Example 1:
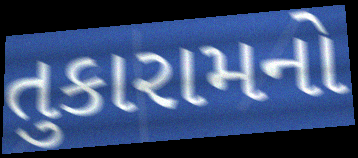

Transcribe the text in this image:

તુકારામનો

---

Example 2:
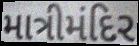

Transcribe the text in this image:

માત્રીમંદિર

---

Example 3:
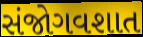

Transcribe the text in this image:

સંજોગવશાત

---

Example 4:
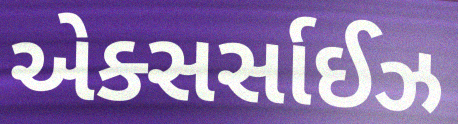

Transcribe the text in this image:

એક્સર્સાઈઝ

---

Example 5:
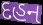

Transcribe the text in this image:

દહન